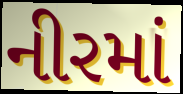
નીરમાં